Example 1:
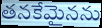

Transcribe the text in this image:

తనకేమైనను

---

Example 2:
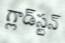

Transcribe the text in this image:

గ్లాడ్‌స్టన్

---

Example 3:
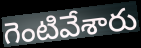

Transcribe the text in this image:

గెంటివేశారు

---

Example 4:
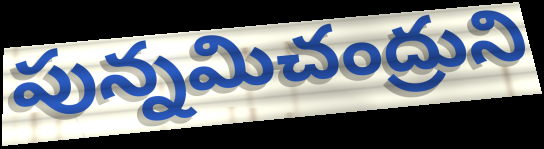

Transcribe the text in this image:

పున్నమిచంద్రుని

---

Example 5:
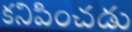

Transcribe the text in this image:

కనిపించడు